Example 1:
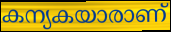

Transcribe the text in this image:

കന്യകയാരാണ്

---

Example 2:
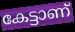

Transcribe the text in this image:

കേട്ടാണ്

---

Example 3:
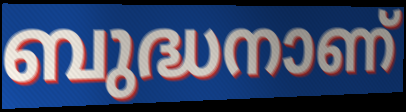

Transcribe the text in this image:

ബുദ്ധനാണ്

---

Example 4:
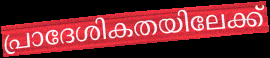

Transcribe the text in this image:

പ്രാദേശികതയിലേക്ക്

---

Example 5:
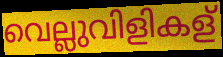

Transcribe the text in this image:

വെല്ലുവിളികള്